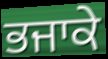
ਭਜਾਕੇ